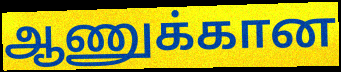
ஆணுக்கான